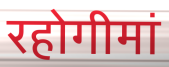
रहोगीमां